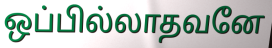
ஒப்பில்லாதவனே